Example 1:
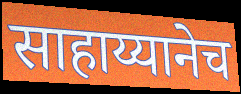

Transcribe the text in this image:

साहाय्यानेच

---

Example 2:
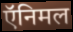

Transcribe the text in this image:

ऍनिमल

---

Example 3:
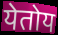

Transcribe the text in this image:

येतोय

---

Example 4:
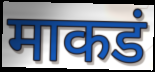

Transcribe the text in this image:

माकडं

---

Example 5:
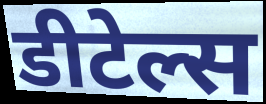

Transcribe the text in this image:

डीटेल्स